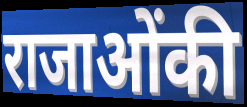
राजाओंकी